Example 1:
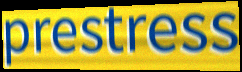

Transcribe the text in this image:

prestress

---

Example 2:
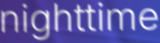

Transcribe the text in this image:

nighttime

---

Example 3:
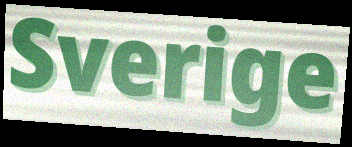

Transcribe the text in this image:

Sverige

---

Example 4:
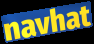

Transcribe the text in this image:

navhat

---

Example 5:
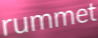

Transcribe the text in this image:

rummet